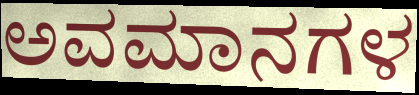
ಅವಮಾನಗಳ